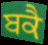
ਬਕੈ